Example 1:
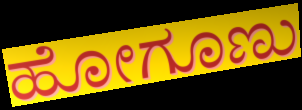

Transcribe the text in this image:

ಹೋಗೂಣು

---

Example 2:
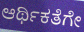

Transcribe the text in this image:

ಆರ್ಥಿಕತೆಗೇ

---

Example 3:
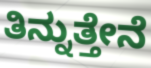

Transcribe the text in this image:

ತಿನ್ನುತ್ತೇನೆ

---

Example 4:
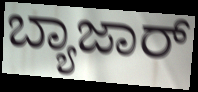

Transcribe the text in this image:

ಬ್ಯಾಜಾರ್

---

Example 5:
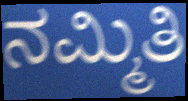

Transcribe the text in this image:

ನಮ್ಮಿತಿ